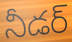
నీడర్